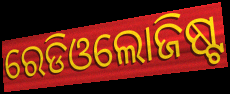
ରେଡିଓଲୋଜିଷ୍ଟ